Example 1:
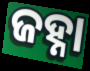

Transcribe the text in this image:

ଜହ୍ନା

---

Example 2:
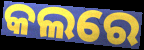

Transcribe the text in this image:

କଲରେ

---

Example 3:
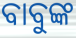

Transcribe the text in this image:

ବାବୁଙ୍କ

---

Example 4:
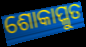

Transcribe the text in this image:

ଶୋକାପ୍ଳୁତ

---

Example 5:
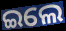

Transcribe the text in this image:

ଇଲେ